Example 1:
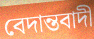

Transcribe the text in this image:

বেদান্তবাদী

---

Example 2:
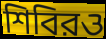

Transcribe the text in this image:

শিবিরও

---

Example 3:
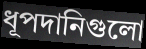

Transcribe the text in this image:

ধূপদানিগুলো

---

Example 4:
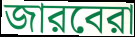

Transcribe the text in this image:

জারবেরা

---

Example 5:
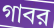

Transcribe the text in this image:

গাবর